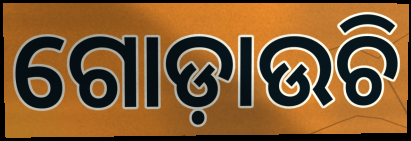
ଗୋଡ଼ାଉଚି